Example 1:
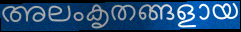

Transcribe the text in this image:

അലംകൃതങ്ങളായ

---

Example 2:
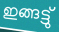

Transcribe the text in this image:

ഇങ്ങട്ടു്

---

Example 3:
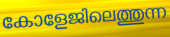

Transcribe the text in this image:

കോളേജിലെത്തുന്ന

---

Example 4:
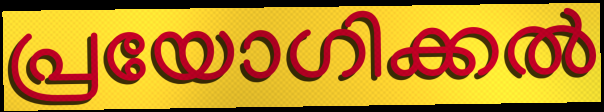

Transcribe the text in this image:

പ്രയോഗിക്കൽ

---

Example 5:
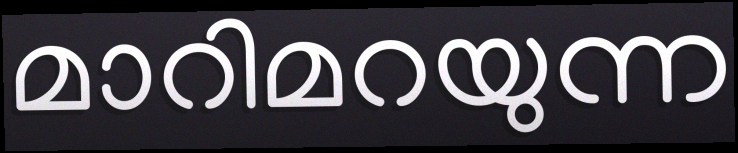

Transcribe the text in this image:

മാറിമറയുന്ന